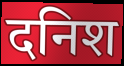
दनिश